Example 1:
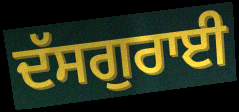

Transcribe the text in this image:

ਦੱਸਗੁਰਾਈ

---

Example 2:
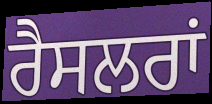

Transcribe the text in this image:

ਰੈਸਲਰਾਂ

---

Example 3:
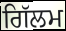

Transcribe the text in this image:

ਗਿੱਲਮ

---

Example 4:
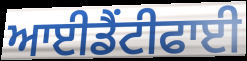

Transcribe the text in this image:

ਆਈਡੈਂਟੀਫਾਈ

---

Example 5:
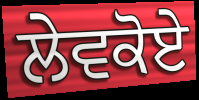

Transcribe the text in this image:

ਲੇਵਕੋਏ